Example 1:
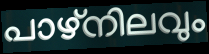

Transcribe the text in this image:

പാഴ്നിലവും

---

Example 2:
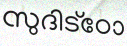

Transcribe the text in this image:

സുദിട്ഠോ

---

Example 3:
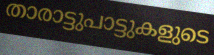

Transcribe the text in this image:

താരാട്ടുപാട്ടുകളുടെ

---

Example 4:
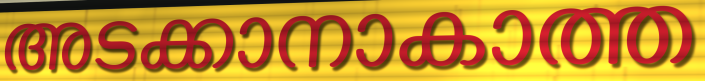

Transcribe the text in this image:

അടക്കാനാകാത്ത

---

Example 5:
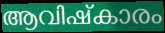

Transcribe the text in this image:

ആവിഷ്‌കാരം